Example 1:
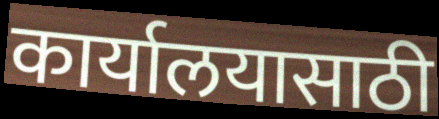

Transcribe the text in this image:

कार्यालयासाठी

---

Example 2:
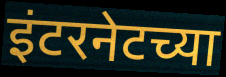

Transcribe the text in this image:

इंटरनेटच्या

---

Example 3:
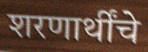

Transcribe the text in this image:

शरणार्थींचे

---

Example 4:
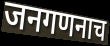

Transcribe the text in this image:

जनगणनाच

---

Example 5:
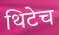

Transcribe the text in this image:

थिटेच